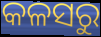
କଳସରୁ